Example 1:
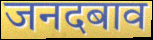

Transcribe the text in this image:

जनदबाव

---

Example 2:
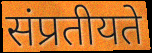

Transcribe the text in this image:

संप्रतीयते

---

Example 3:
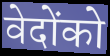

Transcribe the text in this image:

वेदोंको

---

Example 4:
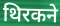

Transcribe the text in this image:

थिरकने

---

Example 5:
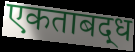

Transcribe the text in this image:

एकताबद्ध